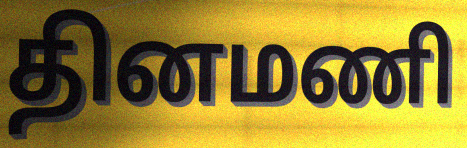
தினமணி